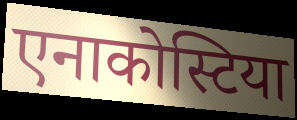
एनाकोस्टिया